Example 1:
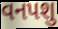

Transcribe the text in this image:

વનપશુ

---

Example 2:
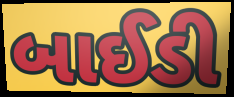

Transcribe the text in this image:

બાઈડી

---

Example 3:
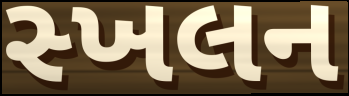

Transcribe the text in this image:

સ્ખલન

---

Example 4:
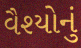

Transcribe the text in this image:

વૈશ્યોનું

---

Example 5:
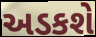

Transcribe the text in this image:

અડકશે